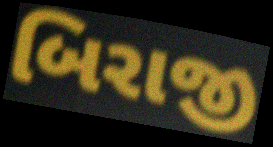
બિરાજી